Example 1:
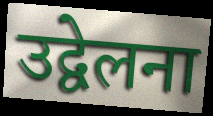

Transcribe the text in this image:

उद्वेलना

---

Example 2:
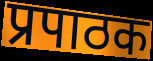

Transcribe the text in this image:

प्रपाठक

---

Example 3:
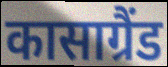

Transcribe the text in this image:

कासाग्रैंड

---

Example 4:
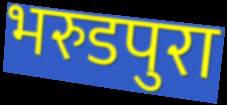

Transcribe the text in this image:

भरुडपुरा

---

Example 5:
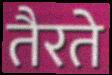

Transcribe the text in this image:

तैरते